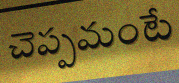
చెప్పమంటే